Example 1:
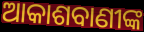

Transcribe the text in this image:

ଆକାଶବାଣୀଙ୍କ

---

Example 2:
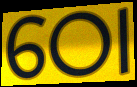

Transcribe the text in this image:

ଠୋ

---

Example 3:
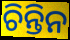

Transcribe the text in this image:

ଚିନ୍ତିନ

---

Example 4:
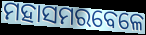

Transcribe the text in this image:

ମହାସମରବେଳେ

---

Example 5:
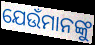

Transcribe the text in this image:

ଯେଉଁମାନଙ୍କୁ